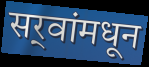
सर्वांमधून